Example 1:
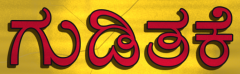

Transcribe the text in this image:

ಗುಡಿತಕೆ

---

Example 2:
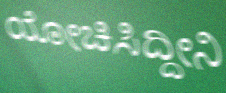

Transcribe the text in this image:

ಯೋಚಿಸಿದ್ದೀನಿ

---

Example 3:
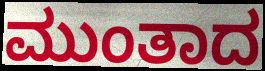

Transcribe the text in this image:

ಮುಂತಾದ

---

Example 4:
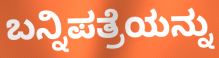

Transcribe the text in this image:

ಬನ್ನಿಪತ್ರೆಯನ್ನು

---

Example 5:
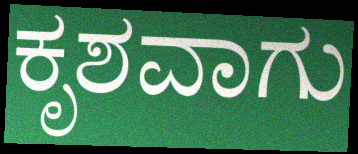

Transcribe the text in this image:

ಕೃಶವಾಗು